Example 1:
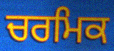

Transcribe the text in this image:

ਚਰਮਿਕ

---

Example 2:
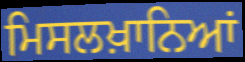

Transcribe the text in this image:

ਮਿਸਲਖ਼ਾਨਿਆਂ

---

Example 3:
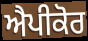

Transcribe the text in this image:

ਐਪੀਕੋਰ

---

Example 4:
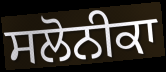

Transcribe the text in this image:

ਸਲੋਨੀਕਾ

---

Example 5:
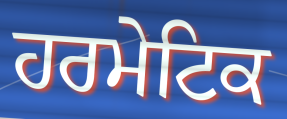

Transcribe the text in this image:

ਹਰਮੇਟਿਕ